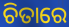
ଚିତାରେ